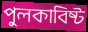
পুলকাবিষ্ট